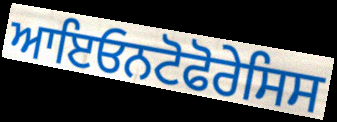
ਆਇਓਨਟੋਫੋਰੇਸਿਸ